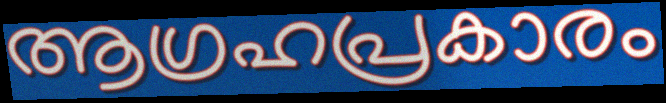
ആഗ്രഹപ്രകാരം